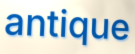
antique